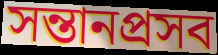
সন্তানপ্রসব